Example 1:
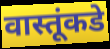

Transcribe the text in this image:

वास्तूंकडे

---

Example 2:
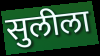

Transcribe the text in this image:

सुलीला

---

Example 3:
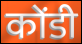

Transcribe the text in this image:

कोंडी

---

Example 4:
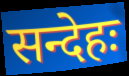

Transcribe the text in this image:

सन्देहः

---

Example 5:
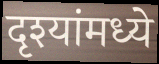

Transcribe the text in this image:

दृश्यांमध्ये